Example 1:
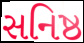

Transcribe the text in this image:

સનિષ્ઠ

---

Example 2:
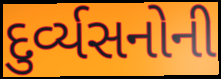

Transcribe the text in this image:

દુર્વ્યસનોની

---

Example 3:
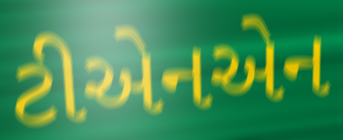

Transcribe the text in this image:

ટીએનએન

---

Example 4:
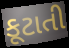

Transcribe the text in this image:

કૂટાતી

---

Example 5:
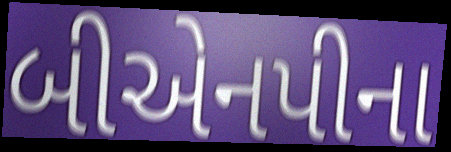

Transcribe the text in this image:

બીએનપીના